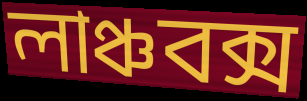
লাঞ্চবক্স